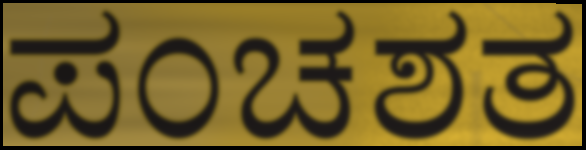
ಪಂಚಶತ